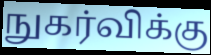
நுகர்விக்கு